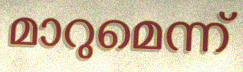
മാറുമെന്ന്